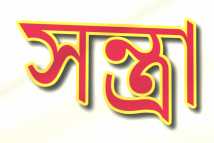
সন্ত্রা